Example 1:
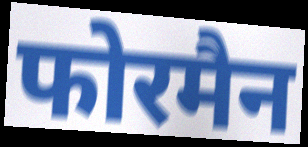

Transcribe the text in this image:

फोरमैन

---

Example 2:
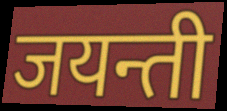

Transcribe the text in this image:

जयन्ती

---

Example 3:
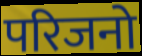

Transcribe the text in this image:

परिजनो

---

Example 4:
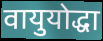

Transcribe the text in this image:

वायुयोद्धा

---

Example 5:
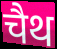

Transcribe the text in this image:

चैथ